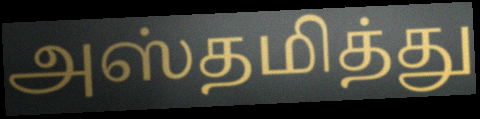
அஸ்தமித்து